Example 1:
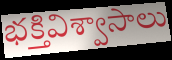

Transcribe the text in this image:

భక్తివిశ్వాసాలు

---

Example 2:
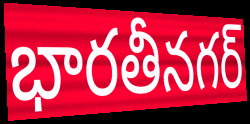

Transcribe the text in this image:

భారతీనగర్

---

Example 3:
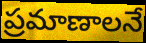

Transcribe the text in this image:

ప్రమాణాలనే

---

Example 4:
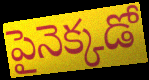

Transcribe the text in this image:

పైనెక్కడో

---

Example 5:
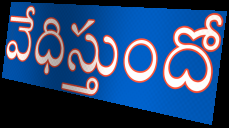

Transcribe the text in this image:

వేధిస్తుందో